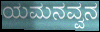
ಯಮನವ್ವನ